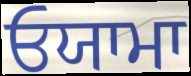
ਓਯਾਮਾ